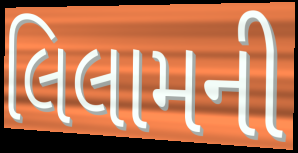
લિલામની